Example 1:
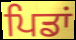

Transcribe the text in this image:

ਪਿਡਾਂ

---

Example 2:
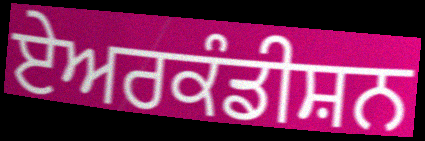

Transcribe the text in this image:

ਏਅਰਕੰਡੀਸ਼ਨ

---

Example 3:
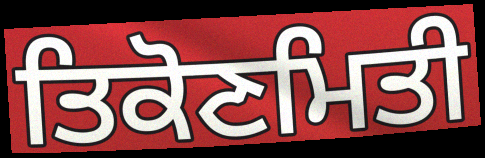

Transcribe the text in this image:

ਤਿਕੋਣਮਿਤੀ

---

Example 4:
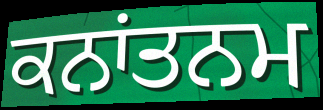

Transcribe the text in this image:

ਕਨਾਂਤਨਮ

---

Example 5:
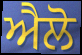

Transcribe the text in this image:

ਐਲੋ